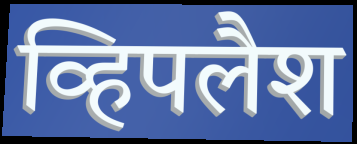
व्हिपलैश